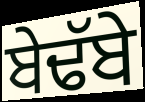
ਬੇਢੱਬੇ